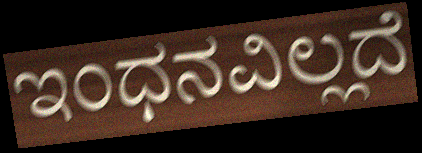
ಇಂಧನವಿಲ್ಲದೆ